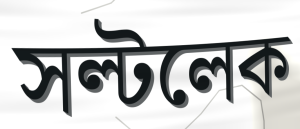
সল্টলেক